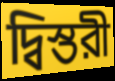
দ্বিস্তরী